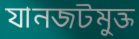
যানজটমুক্ত